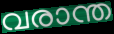
വരാന്ത